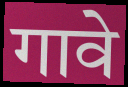
गावे